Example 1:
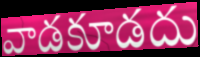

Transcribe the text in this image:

వాడకూడదు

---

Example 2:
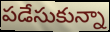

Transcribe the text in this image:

పడేసుకున్నా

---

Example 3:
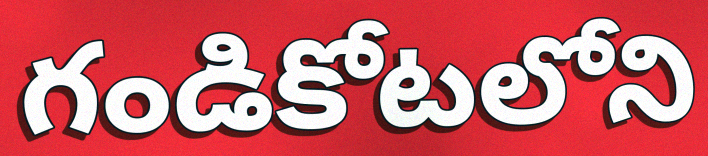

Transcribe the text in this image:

గండికోటలోని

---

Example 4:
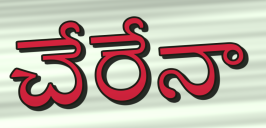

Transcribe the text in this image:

చేరేనా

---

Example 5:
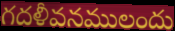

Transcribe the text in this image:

గదళీవనములందు